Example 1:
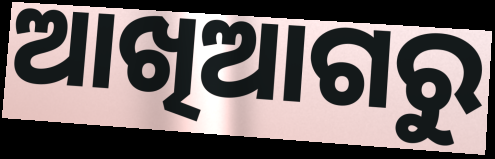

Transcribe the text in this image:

ଆଖିଆଗରୁ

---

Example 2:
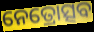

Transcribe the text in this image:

ନେତ୍ରୋତ୍ସବ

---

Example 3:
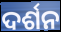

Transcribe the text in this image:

ଦର୍ଶନ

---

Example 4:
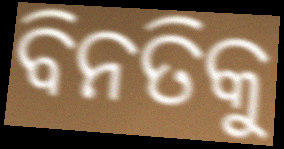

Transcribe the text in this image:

ବିନତିକୁ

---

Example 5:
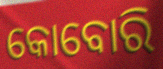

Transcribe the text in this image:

କୋବୋରି